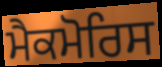
ਮੈਕਮੋਰਿਸ